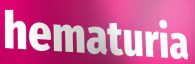
hematuria